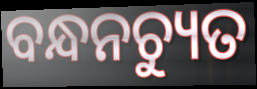
ବନ୍ଧନଚ୍ୟୁତ